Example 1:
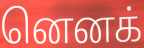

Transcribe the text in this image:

னெனக்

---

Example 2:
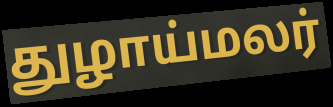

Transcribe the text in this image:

துழாய்மலர்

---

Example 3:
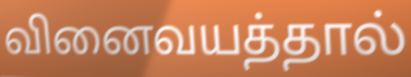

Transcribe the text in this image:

வினைவயத்தால்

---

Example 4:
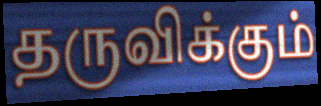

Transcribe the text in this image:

தருவிக்கும்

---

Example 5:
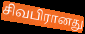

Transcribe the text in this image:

சிவபிரானது